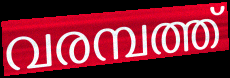
വരമ്പത്ത്